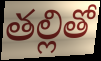
తల్లితో